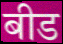
बीड